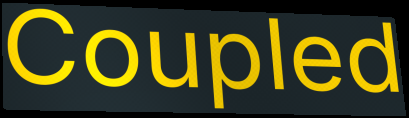
Coupled